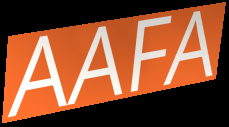
AAFA